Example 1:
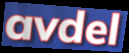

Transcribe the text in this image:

avdel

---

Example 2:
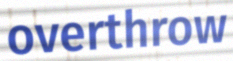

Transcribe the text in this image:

overthrow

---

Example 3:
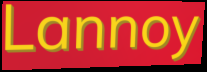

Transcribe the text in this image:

Lannoy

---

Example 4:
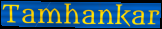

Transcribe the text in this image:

Tamhankar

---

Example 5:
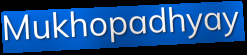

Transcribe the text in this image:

Mukhopadhyay